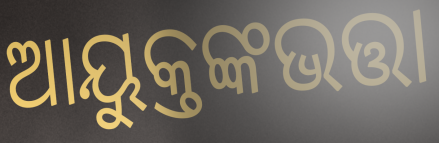
ଆୟୁକ୍ତଙ୍କଭତ୍ତା